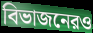
বিভাজনেরও